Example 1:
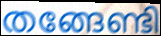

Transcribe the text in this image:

തങ്ങേണ്ടി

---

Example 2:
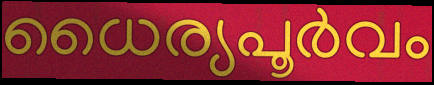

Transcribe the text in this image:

ധൈര്യപൂർവം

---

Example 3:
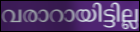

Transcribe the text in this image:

വരാറായിട്ടില്ല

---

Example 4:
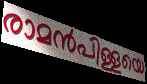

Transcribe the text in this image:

രാമൻപിള്ളയെ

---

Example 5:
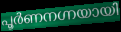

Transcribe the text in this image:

പൂർണനഗ്നയായി